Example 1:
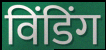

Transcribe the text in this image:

विंडिंग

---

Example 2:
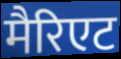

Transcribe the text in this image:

मैरिएट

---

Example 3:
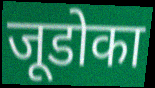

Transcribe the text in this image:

जूडोका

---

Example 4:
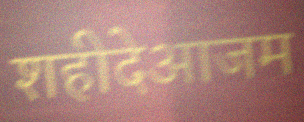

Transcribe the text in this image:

शहीदेआजम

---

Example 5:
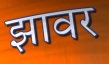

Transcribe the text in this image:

झावर